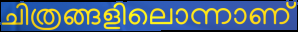
ചിത്രങ്ങളിലൊന്നാണ്